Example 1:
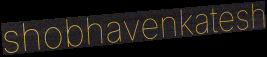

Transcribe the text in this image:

shobhavenkatesh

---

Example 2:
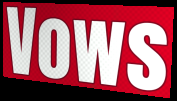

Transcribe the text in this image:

Vows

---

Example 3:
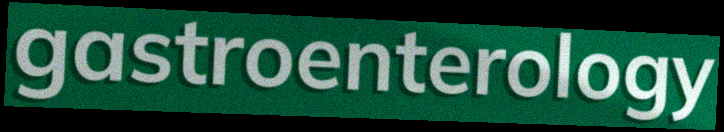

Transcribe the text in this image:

gastroenterology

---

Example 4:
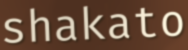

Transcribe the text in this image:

shakato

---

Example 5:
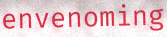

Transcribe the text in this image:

envenoming